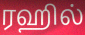
ரஹில்